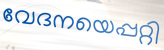
വേദനയെപ്പറ്റി